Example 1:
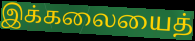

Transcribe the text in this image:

இக்கலையைத்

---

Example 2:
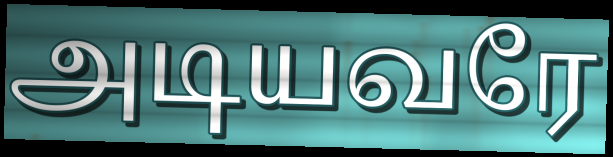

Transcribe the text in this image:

அடியவரே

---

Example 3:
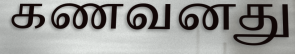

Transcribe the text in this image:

கணவனது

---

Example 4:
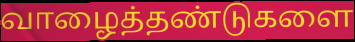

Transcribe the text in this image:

வாழைத்தண்டுகளை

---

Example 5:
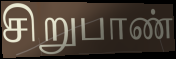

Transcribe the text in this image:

சிறுபாண்